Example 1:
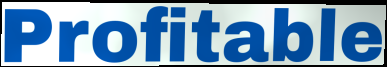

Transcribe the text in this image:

Profitable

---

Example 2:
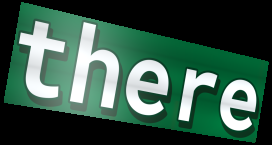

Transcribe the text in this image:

there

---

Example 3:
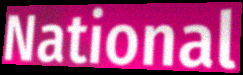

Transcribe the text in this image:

National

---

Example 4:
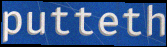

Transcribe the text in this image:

putteth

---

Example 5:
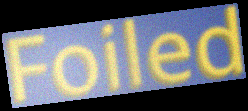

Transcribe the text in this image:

Foiled